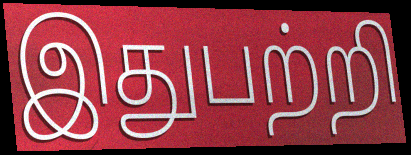
இதுபற்றி